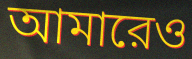
আমারেও